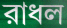
রাধল